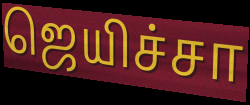
ஜெயிச்சா